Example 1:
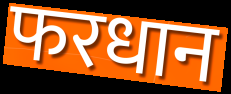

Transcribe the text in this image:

फरधान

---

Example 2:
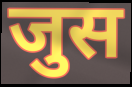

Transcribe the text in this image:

जुस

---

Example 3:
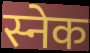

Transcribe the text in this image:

स्‍नेक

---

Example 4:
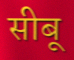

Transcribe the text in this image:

सीबू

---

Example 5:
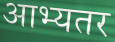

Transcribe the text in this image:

आभ्यतर